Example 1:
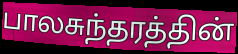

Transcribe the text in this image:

பாலசுந்தரத்தின்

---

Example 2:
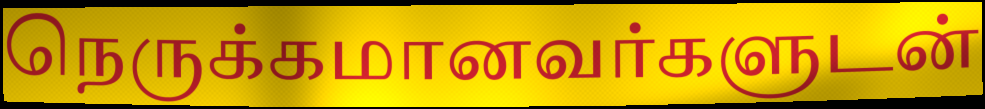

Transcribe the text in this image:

நெருக்கமானவர்களுடன்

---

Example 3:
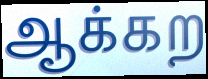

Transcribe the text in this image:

ஆக்கற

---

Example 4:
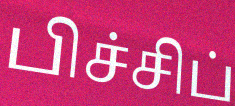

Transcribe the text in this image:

பிச்சிப்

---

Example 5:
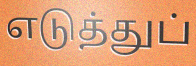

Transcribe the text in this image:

எடுத்துப்